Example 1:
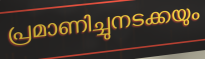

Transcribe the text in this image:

പ്രമാണിച്ചുനടക്കയും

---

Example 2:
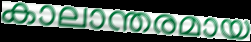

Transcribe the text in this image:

കാലാന്തരമായ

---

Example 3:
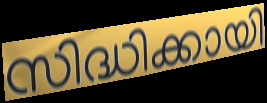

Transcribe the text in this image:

സിദ്ധിക്കായി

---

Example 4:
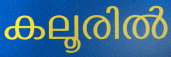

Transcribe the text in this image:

കലൂരിൽ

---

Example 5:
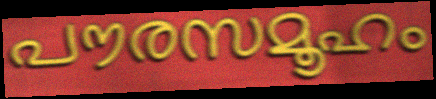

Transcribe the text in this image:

പൗരസമൂഹം